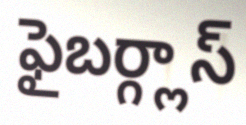
ఫైబర్గ్లాస్